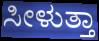
ಸೀಳುತ್ತಾ